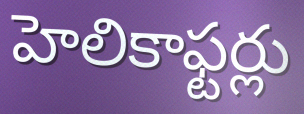
హెలికాఫ్టర్లు